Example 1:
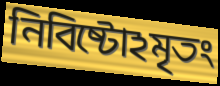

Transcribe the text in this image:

নিবিষ্টোঽমৃতং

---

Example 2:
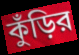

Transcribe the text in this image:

কুঁড়ির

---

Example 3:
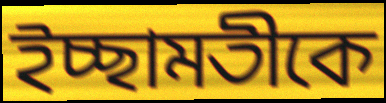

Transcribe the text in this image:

ইচ্ছামতীকে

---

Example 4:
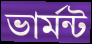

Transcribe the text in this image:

ভার্মন্ট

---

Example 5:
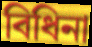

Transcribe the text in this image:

বিধিনা